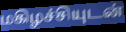
மகிழச்சியுடன்